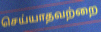
செய்யாதவற்றை